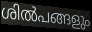
ശിൽപങ്ങളും